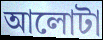
আলোটা